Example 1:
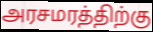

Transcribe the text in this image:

அரசமரத்திற்கு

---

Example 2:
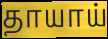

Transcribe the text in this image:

தாயாய்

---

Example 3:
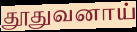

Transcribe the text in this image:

தூதுவனாய்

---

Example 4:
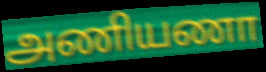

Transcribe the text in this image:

அணியணா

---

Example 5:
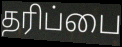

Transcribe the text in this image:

தரிப்பை